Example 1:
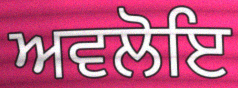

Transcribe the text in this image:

ਅਵਲੋਇ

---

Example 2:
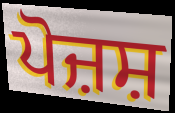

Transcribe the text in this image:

ਪੋਜ਼ਸ਼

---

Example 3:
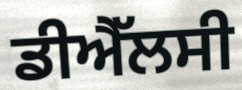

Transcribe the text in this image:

ਡੀਐੱਲਸੀ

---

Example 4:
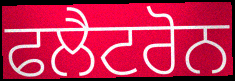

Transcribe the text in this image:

ਫਲੈਟਰੋਨ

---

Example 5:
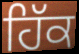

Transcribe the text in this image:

ਹਿੱਕ